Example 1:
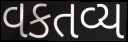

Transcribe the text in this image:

વકતવ્ય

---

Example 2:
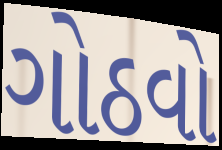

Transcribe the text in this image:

ગોઠવો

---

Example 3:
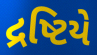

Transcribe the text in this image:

દ્રષ્ટિયે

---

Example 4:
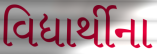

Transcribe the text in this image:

વિદ્યાર્થીના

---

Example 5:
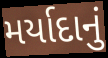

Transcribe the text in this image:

મર્યાદાનું